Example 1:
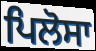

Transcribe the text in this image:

ਪਿਲੋਸਾ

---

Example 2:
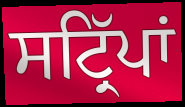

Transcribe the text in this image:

ਸਟ੍ਰਿੱਪਾਂ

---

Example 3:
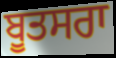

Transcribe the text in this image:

ਬੂਤਸਰਾ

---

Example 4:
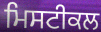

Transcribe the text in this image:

ਮਿਸਟੀਕਲ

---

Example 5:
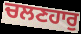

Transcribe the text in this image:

ਚਲਣਹਾਰੁ